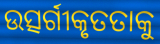
ଉତ୍ସର୍ଗୀକୃତତାକୁ